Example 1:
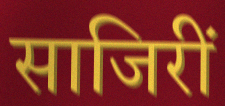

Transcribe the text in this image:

साजिरीं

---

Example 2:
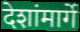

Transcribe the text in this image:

देशांमार्गे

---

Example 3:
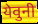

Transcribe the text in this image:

येवुनी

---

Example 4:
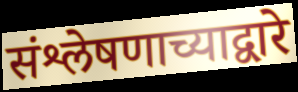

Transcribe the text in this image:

संश्लेषणाच्याद्वारे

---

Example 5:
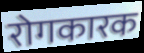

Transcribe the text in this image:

रोगकारक